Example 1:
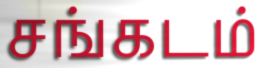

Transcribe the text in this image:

சங்கடம்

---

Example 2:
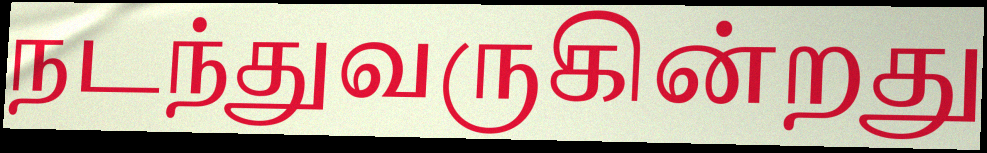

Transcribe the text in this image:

நடந்துவருகின்றது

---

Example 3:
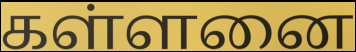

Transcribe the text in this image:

கள்ளனை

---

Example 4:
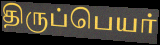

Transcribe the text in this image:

திருப்பெயர்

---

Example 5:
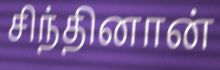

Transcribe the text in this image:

சிந்தினான்